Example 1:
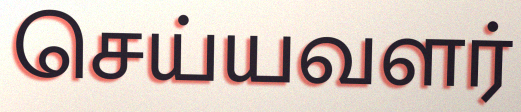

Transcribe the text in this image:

செய்யவளர்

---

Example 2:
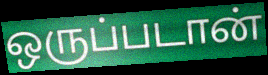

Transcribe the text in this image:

ஒருப்படான்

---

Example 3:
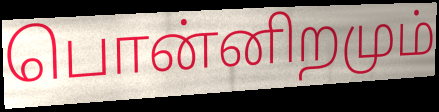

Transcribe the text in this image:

பொன்னிறமும்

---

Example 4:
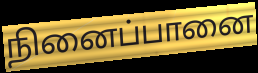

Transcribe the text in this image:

நினைப்பானை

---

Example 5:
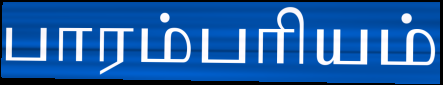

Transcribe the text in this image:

பாரம்பரியம்